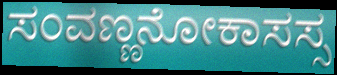
ಸಂವಣ್ಣನೋಕಾಸಸ್ಸ